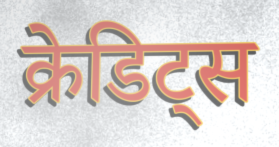
क्रेडिट्स